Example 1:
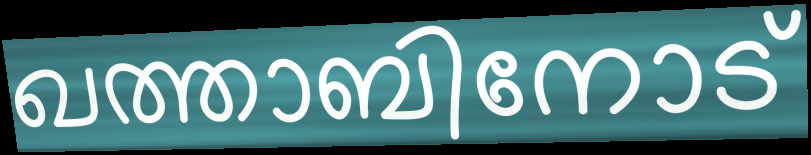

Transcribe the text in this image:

ഖത്താബിനോട്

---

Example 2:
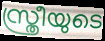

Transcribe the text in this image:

സ്ത്രീയുടെ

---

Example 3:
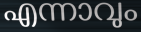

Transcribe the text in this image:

എന്നാവും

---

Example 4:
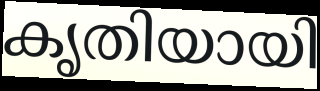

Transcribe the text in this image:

കൃതിയായി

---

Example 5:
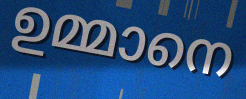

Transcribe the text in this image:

ഉമ്മാനെ